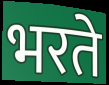
भरते